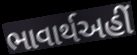
ભાવાર્થઅહીં